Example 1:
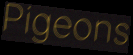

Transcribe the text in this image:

Pigeons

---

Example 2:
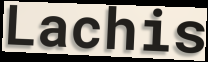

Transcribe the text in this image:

Lachis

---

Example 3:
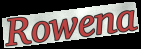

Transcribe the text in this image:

Rowena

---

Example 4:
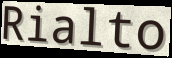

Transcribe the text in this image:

Rialto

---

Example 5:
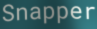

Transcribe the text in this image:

Snapper